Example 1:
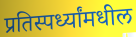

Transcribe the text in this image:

प्रतिस्पर्ध्यांमधील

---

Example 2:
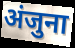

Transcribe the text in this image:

अंजुना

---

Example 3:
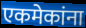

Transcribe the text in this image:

एकमेकांना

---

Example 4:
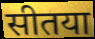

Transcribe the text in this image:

सीतया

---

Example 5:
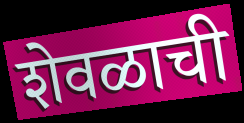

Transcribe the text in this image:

शेवळाची